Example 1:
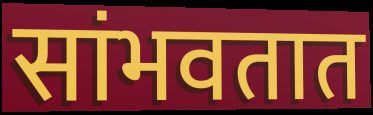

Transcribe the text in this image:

सांभवतात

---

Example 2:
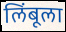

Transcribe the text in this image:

लिंबूला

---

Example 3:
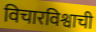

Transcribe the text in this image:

विचारविश्वाची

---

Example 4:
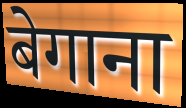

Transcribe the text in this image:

बेगाना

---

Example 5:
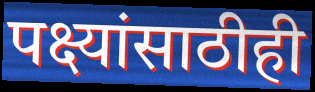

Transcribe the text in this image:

पक्ष्यांसाठीही